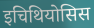
इचिथियोसिस